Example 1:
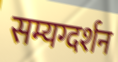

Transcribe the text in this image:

सम्यग्दर्शन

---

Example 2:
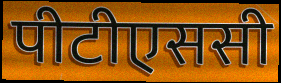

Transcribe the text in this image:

पीटीएससी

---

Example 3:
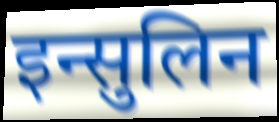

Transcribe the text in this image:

इन्सुलिन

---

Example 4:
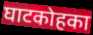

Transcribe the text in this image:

घाटकोहका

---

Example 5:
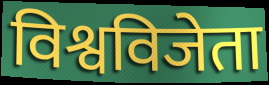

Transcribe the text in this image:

विश्वविजेता